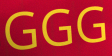
GGG